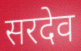
सरदेव